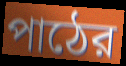
পাঠের